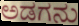
ಅಡಗನು